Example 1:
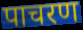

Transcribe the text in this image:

पाचरण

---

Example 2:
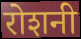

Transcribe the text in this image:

रोशनी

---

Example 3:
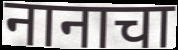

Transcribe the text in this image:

नानाचा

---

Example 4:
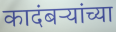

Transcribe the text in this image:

कादंबऱ्यांच्या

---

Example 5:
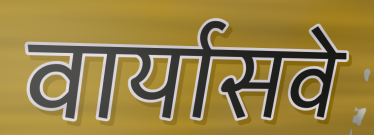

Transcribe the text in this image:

वार्यासवे